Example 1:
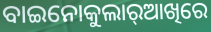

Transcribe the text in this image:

ବାଇନୋକୁଲାର୍‌ଆଖିରେ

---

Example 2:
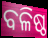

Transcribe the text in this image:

ବଳିଷ୍ଠ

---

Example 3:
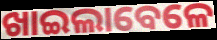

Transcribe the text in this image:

ଖାଇଲାବେଳେ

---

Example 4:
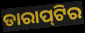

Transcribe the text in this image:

ଡାରାପ୍‌ଟିର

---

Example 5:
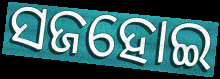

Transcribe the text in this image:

ସଜହୋଇ